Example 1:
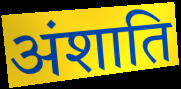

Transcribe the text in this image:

अंशाति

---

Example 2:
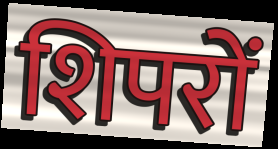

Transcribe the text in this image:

शिपरों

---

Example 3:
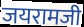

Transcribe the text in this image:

जयरामजी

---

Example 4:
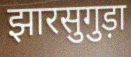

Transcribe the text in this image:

झारसुगुड़ा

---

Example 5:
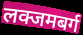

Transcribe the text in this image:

लक्जमबर्ग